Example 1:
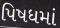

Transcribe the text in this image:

પિષધમાં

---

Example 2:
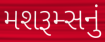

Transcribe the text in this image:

મશરૂમ્સનું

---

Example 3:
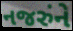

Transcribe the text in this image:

નજરુંને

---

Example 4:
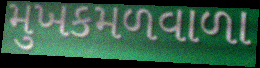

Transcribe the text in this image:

મુખકમળવાળા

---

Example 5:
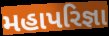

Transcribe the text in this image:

મહાપરિજ્ઞા